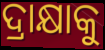
ଦ୍ରାକ୍ଷାକୁ